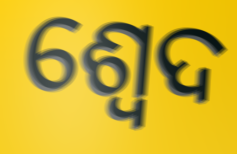
ଶ୍ଵେଦ